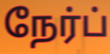
நேர்ப்